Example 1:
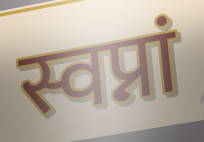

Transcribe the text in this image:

स्वप्नां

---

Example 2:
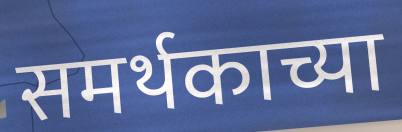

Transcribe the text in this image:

समर्थकाच्या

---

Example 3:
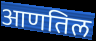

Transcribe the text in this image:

आणतिल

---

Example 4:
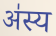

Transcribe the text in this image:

अ॑स्य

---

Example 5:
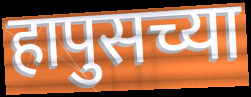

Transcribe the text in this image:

हापुसच्या